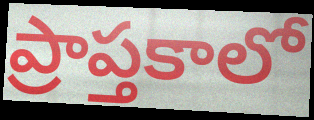
ప్రాప్తకాలో